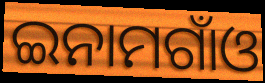
ଇନାମଗାଁଓ